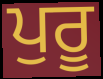
ਪੁਰੂ